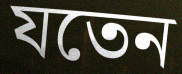
যতেন